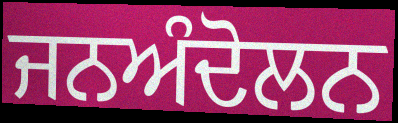
ਜਨਅੰਦੋਲਨ